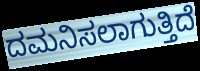
ದಮನಿಸಲಾಗುತ್ತಿದೆ